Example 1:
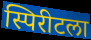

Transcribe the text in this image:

स्पिरीटला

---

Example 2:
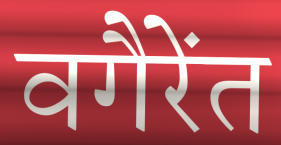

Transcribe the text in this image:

वगैरेंत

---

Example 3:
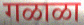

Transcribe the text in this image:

गळाळा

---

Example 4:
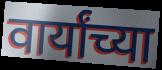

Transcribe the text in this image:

वार्यांच्या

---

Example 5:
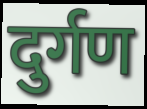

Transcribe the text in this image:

दुर्गण